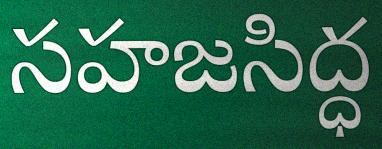
సహజసిద్ధ